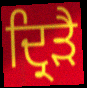
ਦ੍ਰਿੜੈ